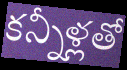
కన్నీళ్లతో